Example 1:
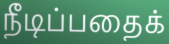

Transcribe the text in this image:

நீடிப்பதைக்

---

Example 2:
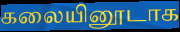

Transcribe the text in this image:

கலையினூடாக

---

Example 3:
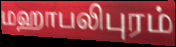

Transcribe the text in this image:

மஹாபலிபுரம்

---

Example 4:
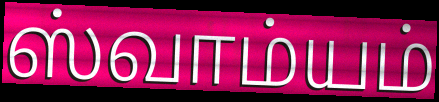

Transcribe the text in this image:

ஸ்வாம்யம்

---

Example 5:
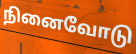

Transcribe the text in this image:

நினைவோடு